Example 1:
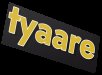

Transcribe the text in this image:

tyaare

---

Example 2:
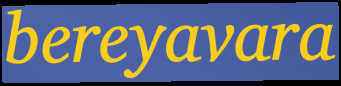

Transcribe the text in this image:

bereyavara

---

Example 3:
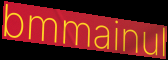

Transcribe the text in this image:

bmmainul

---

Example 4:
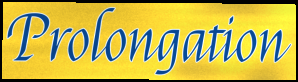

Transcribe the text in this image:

Prolongation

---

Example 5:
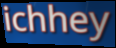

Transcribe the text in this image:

ichhey